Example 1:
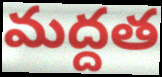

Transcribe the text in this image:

మద్దత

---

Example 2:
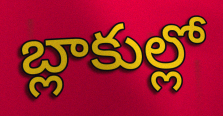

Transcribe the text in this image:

బ్లాకుల్లో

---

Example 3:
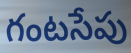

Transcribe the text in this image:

గంటసేపు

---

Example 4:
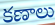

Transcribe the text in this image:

కణాలు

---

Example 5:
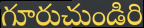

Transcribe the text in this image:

గూరుచుండిరి